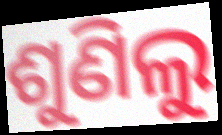
ଶୁଣିଲୁ